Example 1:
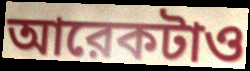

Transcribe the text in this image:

আরেকটাও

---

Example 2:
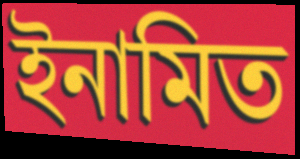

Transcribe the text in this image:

ইনামিত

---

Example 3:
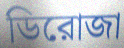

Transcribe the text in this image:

ডিরোজা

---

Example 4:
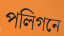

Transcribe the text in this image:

পলিগনে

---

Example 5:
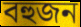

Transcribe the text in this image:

বহুজন